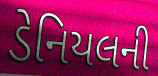
ડેનિયલની